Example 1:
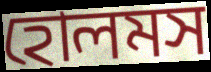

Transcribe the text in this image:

হোলমস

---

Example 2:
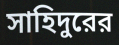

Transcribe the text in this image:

সাহিদুরের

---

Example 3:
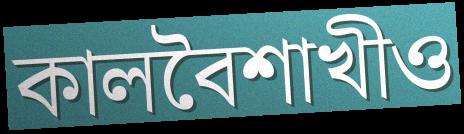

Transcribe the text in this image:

কালবৈশাখীও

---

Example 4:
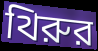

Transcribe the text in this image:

থিরুর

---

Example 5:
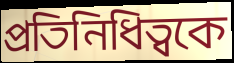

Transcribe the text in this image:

প্রতিনিধিত্বকে